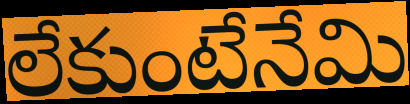
లేకుంటేనేమి